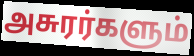
அசுரர்களும்